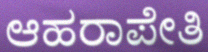
ಆಹರಾಪೇತಿ